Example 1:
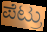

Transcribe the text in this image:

ಪೆಟ್ರು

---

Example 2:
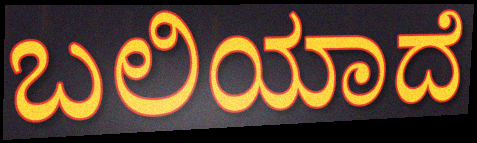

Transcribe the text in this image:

ಬಲಿಯಾದೆ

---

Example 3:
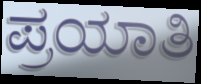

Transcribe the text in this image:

ಪ್ರಯಾತಿ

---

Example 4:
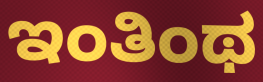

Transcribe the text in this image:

ಇಂತಿಂಥ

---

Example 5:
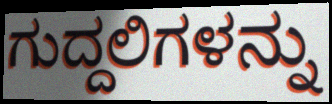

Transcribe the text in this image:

ಗುದ್ದಲಿಗಳನ್ನು